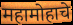
महामोहाचे